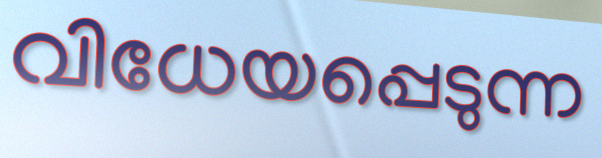
വിധേയപ്പെടുന്ന